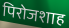
पिरोजशाह